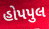
હોપપુલ